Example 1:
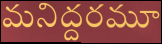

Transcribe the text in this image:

మనిద్దరమూ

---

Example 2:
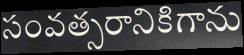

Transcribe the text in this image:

సంవత్సరానికిగాను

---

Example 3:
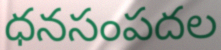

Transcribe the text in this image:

ధనసంపదల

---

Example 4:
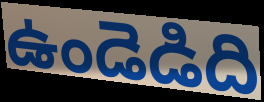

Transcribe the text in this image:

ఉండెడిది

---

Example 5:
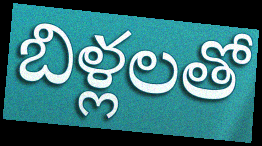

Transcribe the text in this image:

బిళ్లలతో